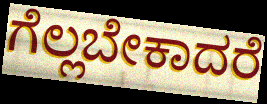
ಗೆಲ್ಲಬೇಕಾದರೆ